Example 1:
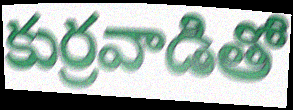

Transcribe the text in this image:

కుర్రవాడితో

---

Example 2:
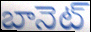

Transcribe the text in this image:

బానెట్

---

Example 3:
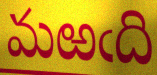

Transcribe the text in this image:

మఱఁది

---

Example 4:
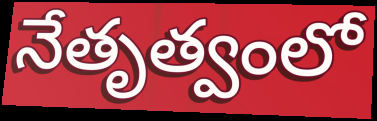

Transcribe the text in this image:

నేతృత్వంలో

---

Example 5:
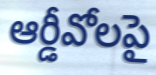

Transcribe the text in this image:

ఆర్డీవోలపై